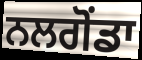
ਨਲਗੋਂਡਾ